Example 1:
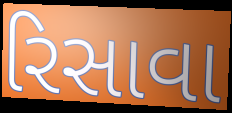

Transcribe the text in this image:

રિસાવા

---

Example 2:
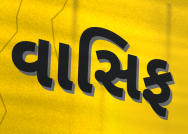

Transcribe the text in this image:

વાસિફ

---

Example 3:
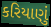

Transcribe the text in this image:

કરિયાણું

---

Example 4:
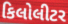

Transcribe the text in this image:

કિલોલીટર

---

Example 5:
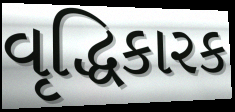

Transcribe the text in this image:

વૃદ્ધિકારક